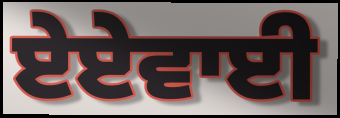
ਏਏਵਾਈ